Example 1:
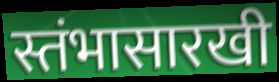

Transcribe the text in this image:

स्तंभासारखी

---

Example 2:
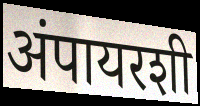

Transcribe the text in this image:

अंपायरशी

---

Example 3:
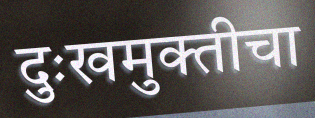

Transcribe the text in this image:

दुःखमुक्तीचा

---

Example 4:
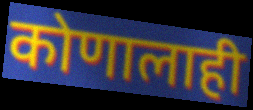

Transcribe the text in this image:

कोणालाही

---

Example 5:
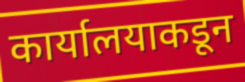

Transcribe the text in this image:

कार्यालयाकडून